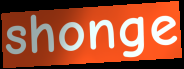
shonge